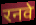
रनवे